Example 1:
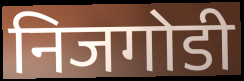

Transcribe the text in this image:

निजगोडी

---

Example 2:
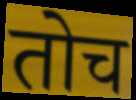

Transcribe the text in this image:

तोच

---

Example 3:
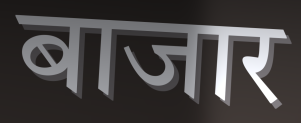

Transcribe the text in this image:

बाजार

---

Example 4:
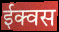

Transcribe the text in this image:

ईक्‍वस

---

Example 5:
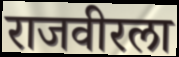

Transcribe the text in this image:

राजवीरला